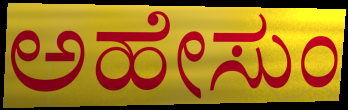
ಅಹೇಸುಂ